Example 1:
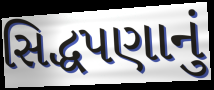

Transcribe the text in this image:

સિદ્ધપણાનું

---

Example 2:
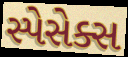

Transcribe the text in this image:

સ્પેસેક્સ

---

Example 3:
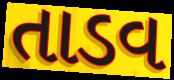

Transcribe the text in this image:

તાડવ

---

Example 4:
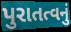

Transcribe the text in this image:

પુરાતત્વનું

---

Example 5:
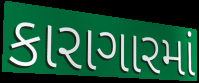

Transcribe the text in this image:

કારાગારમાં